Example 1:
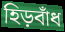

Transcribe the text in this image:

হিড়বাঁধ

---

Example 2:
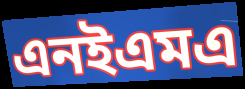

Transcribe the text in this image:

এনইএমএ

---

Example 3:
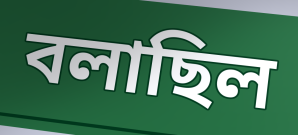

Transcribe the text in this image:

বলাছিল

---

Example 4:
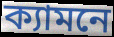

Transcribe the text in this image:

ক্যামনে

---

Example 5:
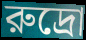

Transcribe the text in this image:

রুদ্রো